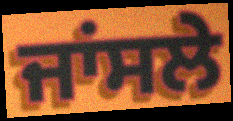
ਜਾਂਸਲੇ